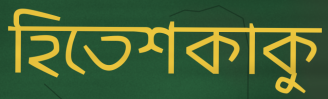
হিতেশকাকু